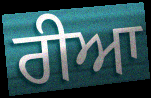
ਰੀਆ